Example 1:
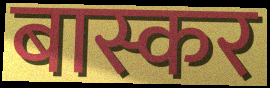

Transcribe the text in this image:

बास्कर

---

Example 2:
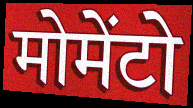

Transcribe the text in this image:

मोमेंटो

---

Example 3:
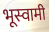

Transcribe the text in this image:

भूस्‍वामी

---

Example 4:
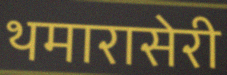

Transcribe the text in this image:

थमारासेरी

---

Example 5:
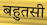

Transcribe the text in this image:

बहुतसी